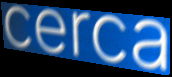
cerca